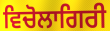
ਵਿਚੋਲਾਗਿਰੀ